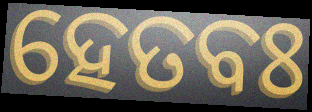
ହେତବଃ